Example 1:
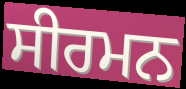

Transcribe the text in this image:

ਸੀਰਮਨ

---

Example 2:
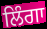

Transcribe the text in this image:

ਲਿੰਗਾ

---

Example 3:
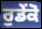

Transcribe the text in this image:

ਰੁਡੇਂਕੋ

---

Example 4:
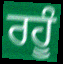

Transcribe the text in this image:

ਰਹੂੰ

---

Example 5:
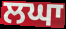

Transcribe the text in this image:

ਲਘਾ